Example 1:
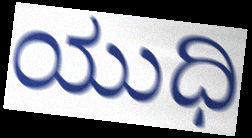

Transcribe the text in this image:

ಯುಧಿ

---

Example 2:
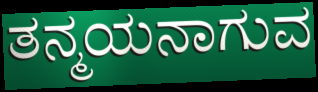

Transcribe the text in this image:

ತನ್ಮಯನಾಗುವ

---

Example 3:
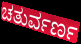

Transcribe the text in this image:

ಚತುರ್ವರ್ಣ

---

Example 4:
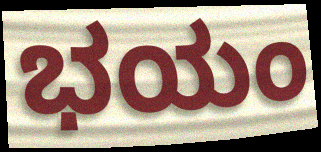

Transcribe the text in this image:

ಭಯಂ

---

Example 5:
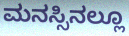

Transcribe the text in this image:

ಮನಸ್ಸಿನಲ್ಲೂ